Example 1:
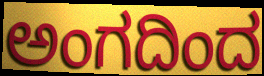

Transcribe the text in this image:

ಅಂಗದಿಂದ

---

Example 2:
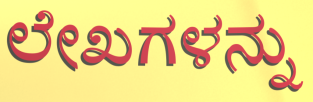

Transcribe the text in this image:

ಲೇಖಗಳನ್ನು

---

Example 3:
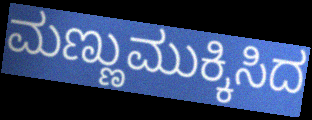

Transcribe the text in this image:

ಮಣ್ಣುಮುಕ್ಕಿಸಿದ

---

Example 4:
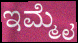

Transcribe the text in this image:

ಇಮ್ಮೈ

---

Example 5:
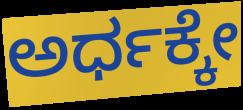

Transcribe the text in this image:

ಅರ್ಧಕ್ಕೇ